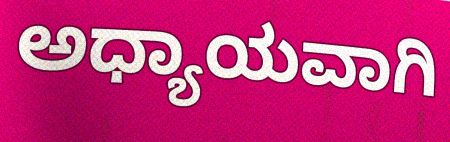
ಅಧ್ಯಾಯವಾಗಿ